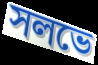
সলভে